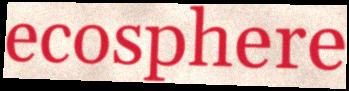
ecosphere